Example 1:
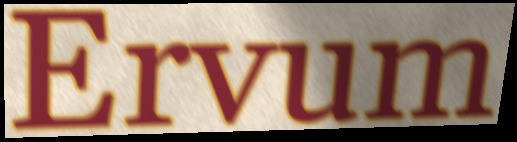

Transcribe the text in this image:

Ervum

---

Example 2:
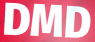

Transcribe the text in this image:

DMD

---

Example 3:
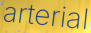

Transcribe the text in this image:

arterial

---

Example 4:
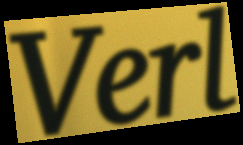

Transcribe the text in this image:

Verl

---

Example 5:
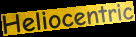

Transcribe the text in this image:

Heliocentric